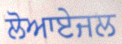
ਲੋਆਏਜਲ